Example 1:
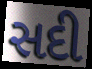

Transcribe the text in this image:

સદી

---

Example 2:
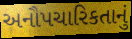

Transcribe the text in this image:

અનૌપચારિકતાનું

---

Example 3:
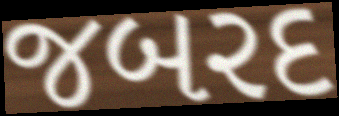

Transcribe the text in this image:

જબરદ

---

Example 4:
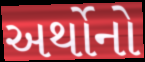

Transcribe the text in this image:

અર્થોનો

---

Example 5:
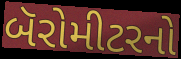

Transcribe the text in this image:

બૅરોમીટરનો